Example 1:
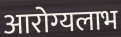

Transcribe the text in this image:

आरोग्यलाभ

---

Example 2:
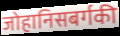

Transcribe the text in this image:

जोहानिसबर्गकी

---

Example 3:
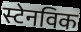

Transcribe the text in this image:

स्टेनविक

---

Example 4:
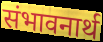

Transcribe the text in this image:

संभावनार्थ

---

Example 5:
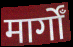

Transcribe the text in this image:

मार्गोँ